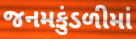
જનમકુંડળીમાં